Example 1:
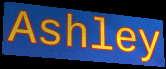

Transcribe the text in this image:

Ashley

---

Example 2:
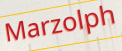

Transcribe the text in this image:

Marzolph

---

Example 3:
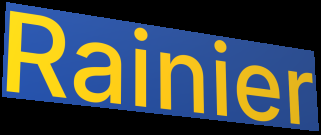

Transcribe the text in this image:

Rainier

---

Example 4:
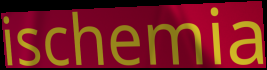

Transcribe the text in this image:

ischemia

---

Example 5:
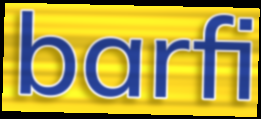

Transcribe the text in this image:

barfi